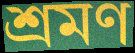
শ্রমণ